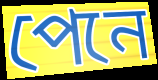
পেনে